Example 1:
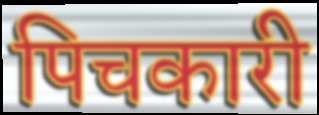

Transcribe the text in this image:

पिचकारी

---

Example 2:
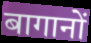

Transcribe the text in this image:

बागानों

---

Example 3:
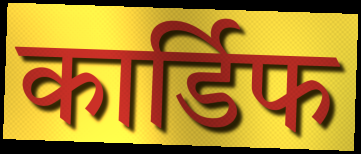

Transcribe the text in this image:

कार्डिफ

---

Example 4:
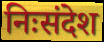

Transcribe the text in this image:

निःसंदेश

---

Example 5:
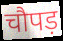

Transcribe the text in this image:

चौपड़